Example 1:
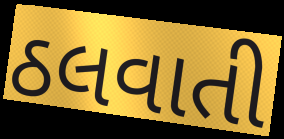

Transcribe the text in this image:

ઠલવાતી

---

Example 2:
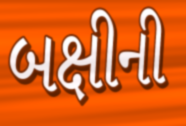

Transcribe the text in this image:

બક્ષીની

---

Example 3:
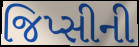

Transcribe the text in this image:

જિપ્સીની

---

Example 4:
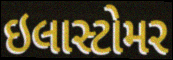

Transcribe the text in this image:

ઇલાસ્ટોમર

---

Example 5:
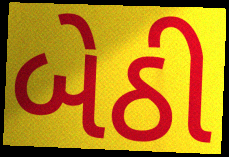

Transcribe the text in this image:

બેઠી